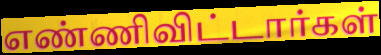
எண்ணிவிட்டார்கள்